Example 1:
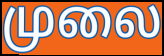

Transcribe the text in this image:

முலை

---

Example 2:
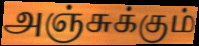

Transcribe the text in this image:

அஞ்சுக்கும்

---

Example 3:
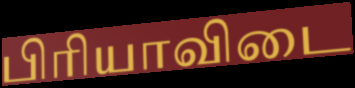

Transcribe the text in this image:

பிரியாவிடை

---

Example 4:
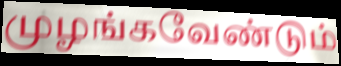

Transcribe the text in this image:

முழங்கவேண்டும்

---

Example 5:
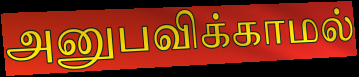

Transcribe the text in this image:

அனுபவிக்காமல்